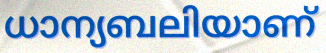
ധാന്യബലിയാണ്